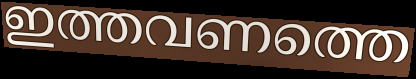
ഇത്തവണത്തെ